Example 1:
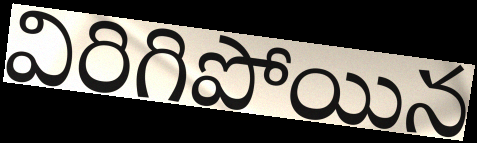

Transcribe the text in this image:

విరిగిపోయిన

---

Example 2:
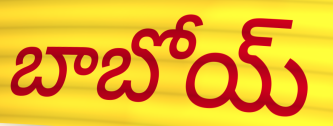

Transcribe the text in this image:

బాబోయ్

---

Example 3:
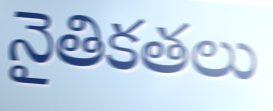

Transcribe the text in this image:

నైతికతలు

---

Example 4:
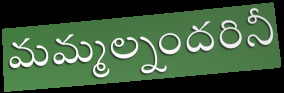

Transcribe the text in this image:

మమ్మల్నందరినీ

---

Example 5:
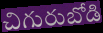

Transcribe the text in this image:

చిగురుబోడి